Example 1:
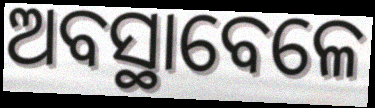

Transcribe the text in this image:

ଅବସ୍ଥାବେଳେ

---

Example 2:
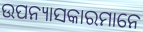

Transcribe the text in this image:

ଉପନ୍ୟାସକାରମାନେ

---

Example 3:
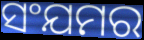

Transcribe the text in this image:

ସଂଯମର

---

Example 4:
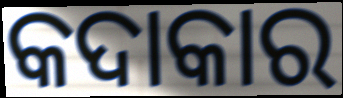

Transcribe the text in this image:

କଦାକାର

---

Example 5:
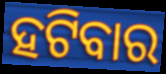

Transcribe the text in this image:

ହଟିବାର